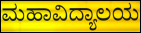
ಮಹಾವಿದ್ಯಾಲಯ